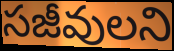
సజీవులని